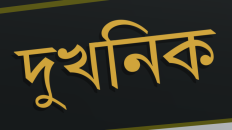
দুখনিক